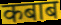
कबाब